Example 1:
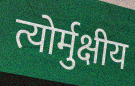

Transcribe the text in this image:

त्योर्मुक्षीय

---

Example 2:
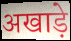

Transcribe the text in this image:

अखाड़े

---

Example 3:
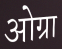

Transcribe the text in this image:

ओग्रा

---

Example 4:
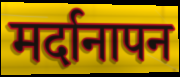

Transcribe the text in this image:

मर्दानापन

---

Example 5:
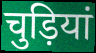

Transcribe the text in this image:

चुड़ियां